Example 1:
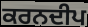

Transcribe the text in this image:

ਕਰਨਦੀਪ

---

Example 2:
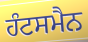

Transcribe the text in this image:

ਹੰਟਸਮੈਨ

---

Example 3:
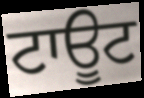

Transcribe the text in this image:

ਟਾਊਟ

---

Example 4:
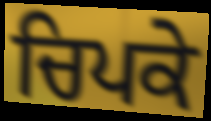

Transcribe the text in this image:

ਚਿਪਕੇ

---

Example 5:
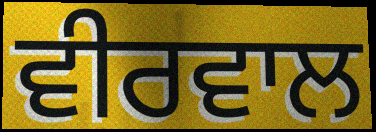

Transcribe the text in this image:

ਵੀਰਵਾਲ